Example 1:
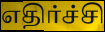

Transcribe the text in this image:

எதிர்ச்சி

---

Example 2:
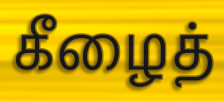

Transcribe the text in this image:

கீழைத்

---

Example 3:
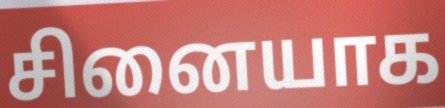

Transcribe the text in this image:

சினையாக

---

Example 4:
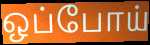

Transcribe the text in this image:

ஒப்போய்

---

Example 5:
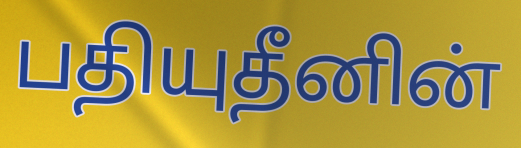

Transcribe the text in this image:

பதியுதீனின்